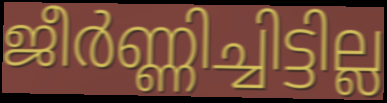
ജീർണ്ണിച്ചിട്ടില്ല